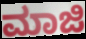
ಮಾಜಿ